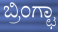
ಬ್ರಿಂಗ್ಟಾ